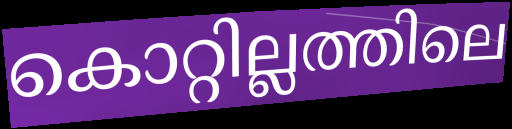
കൊറ്റില്ലത്തിലെ